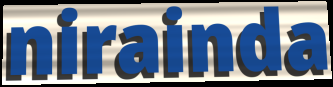
nirainda